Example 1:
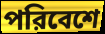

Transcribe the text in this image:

পরিবেশে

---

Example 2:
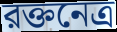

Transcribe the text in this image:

রক্তনেত্র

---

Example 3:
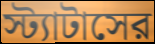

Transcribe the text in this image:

স্ট্যাটাসের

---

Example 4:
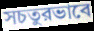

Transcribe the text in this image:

সচতুরভাবে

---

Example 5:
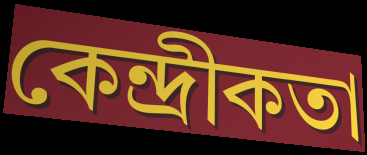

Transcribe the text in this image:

কেন্দ্রীকতা